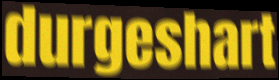
durgeshart